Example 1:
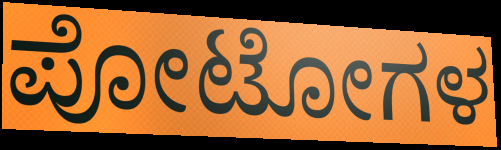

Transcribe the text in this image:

ಪೋಟೋಗಳ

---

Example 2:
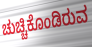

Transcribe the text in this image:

ಚುಚ್ಚಿಕೊಂಡಿರುವ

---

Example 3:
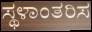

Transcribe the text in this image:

ಸ್ಥಳಾಂತರಿಸ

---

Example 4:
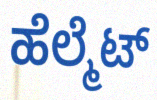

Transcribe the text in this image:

ಹೆಲ್ಮೆಟ್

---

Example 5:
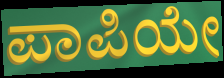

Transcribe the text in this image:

ಪಾಪಿಯೇ